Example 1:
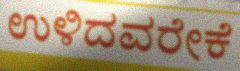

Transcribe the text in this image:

ಉಳಿದವರೇಕೆ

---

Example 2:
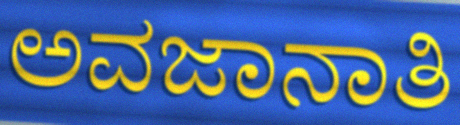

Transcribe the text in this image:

ಅವಜಾನಾತಿ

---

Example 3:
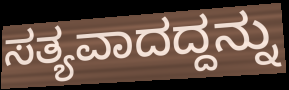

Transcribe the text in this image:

ಸತ್ಯವಾದದ್ದನ್ನು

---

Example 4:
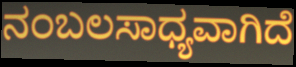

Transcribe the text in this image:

ನಂಬಲಸಾಧ್ಯವಾಗಿದೆ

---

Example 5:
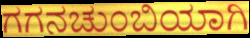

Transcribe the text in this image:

ಗಗನಚುಂಬಿಯಾಗಿ